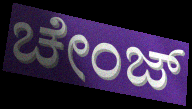
ಚೇಂಜ್